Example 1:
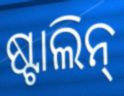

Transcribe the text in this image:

ଷ୍ଟାଲିନ୍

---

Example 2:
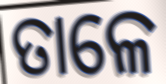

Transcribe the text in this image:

ତାଳେ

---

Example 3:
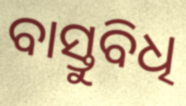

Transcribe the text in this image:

ବାସ୍ତୁବିଧି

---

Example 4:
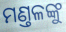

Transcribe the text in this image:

ମଣ୍ତଳଙ୍କୁ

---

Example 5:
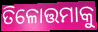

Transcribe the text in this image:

ତିଳୋତ୍ତମାକୁ